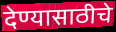
देण्यासाठीचे